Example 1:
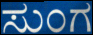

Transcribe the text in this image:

ಸುಂಗ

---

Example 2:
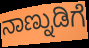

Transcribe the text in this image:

ನಾಣ್ನುಡಿಗೆ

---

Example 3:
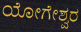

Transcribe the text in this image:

ಯೋಗೇಶ್ವರ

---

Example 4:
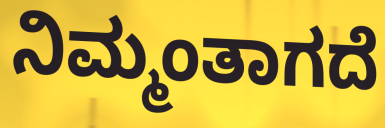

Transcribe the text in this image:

ನಿಮ್ಮಂತಾಗದೆ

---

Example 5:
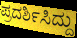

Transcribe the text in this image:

ಪ್ರದರ್ಶಿಸಿದ್ದು